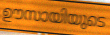
ഊസായിയുടെ